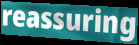
reassuring